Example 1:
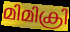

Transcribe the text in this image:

മിമിക്രി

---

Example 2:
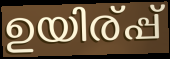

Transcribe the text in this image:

ഉയിര്പ്പ്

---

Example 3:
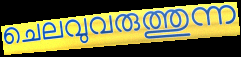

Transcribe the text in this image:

ചെലവുവരുത്തുന്ന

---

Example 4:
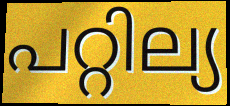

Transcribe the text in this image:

പറ്റില്യ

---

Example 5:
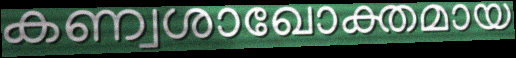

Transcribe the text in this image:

കണ്വശാഖോക്തമായ